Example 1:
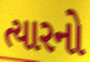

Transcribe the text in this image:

ત્યારનો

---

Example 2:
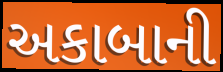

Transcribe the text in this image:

અકાબાની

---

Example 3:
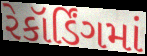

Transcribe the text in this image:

રેકૉર્ડિંગમાં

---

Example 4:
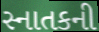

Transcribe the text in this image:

સ્નાતકની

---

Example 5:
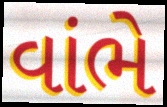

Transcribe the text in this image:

વાંભે